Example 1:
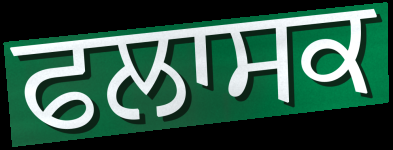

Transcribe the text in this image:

ਫਲਾਸਕ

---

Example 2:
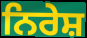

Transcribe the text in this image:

ਨਿਰੇਸ਼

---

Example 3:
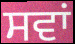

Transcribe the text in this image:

ਸਵਾਂ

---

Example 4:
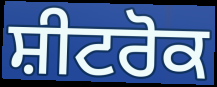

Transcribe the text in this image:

ਸ਼ੀਟਰੋਕ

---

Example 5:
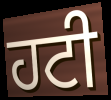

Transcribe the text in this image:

ਹਟੀ